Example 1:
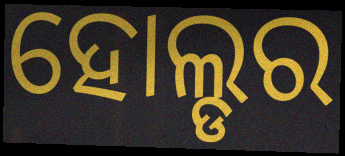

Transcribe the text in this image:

ହୋଲ୍ଡର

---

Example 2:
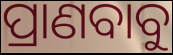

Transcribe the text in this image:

ପ୍ରାଣବାବୁ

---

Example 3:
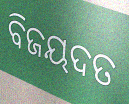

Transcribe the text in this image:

ବିଜୟଦତ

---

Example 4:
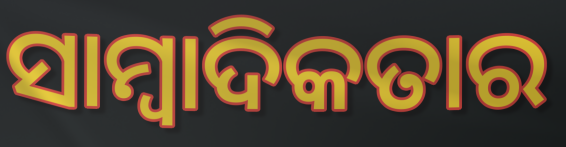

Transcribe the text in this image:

ସାମ୍ୱାଦିକତାର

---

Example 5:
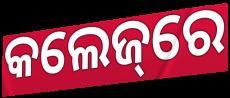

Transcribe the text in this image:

କଲେଜ୍‌ରେ